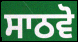
ਸਾਠਵੋ